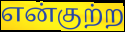
என்குற்ற